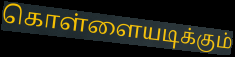
கொள்ளையடிக்கும்